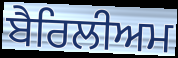
ਬੈਰਿਲੀਅਮ